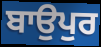
ਬਾਉਪੁਰ